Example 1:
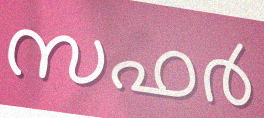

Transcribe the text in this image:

സഫർ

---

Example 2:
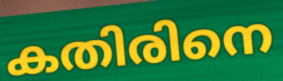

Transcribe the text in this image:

കതിരിനെ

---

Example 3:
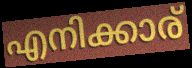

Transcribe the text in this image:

എനിക്കാര്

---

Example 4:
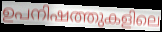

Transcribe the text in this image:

ഉപനിഷത്തുകളിലെ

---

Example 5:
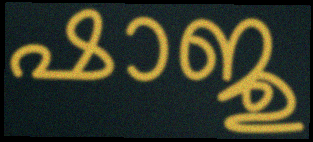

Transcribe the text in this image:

ഷാജു